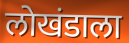
लोखंडाला